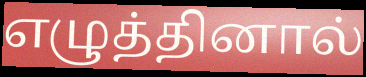
எழுத்தினால்